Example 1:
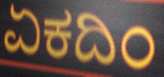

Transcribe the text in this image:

ಏಕದಿಂ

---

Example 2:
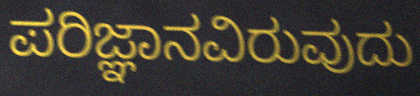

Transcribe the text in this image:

ಪರಿಜ್ಞಾನವಿರುವುದು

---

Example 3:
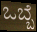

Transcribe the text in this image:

ಒಬ್ಬೆ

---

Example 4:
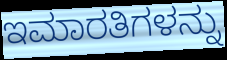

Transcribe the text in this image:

ಇಮಾರತಿಗಳನ್ನು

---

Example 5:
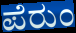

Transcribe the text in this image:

ಪೆರುಂ